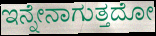
ಇನ್ನೇನಾಗುತ್ತದೋ